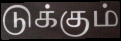
டுக்கும்